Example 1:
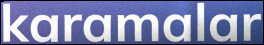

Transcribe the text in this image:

karamalar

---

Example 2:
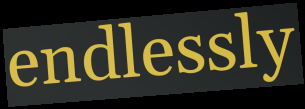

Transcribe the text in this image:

endlessly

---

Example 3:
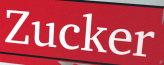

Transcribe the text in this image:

Zucker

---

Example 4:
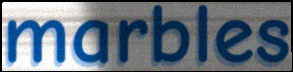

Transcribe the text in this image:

marbles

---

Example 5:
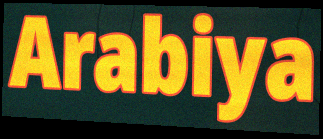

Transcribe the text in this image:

Arabiya